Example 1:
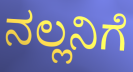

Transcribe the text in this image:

ನಲ್ಲನಿಗೆ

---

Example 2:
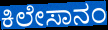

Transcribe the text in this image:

ಕಿಲೇಸಾನಂ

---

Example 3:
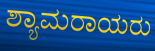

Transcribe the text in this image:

ಶ್ಯಾಮರಾಯರು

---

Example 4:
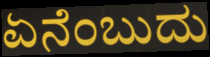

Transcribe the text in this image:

ಏನೆಂಬುದು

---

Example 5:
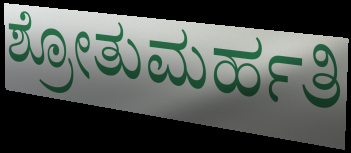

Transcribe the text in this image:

ಶ್ರೋತುಮರ್ಹತಿ